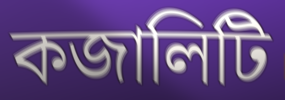
কজালিটি